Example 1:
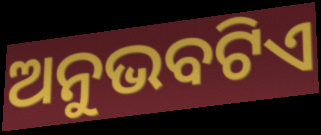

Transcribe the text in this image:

ଅନୁଭବଟିଏ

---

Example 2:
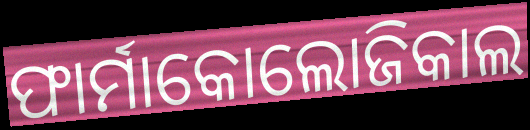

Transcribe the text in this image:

ଫାର୍ମାକୋଲୋଜିକାଲ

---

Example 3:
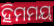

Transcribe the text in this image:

ହିମମୟ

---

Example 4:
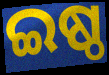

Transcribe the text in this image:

ଇଷ୍ଠ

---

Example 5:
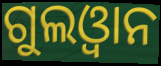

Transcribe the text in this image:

ଗୁଲଓ୍ୱାନ